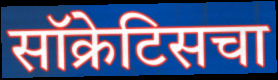
सॉक्रेटिसचा